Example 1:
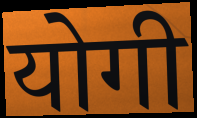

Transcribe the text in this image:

योगी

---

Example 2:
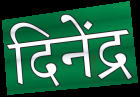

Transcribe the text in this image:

दिनेंद्र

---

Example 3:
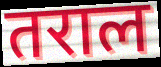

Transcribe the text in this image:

तराल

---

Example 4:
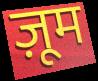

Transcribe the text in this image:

ज़ूम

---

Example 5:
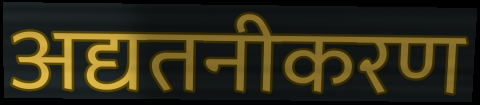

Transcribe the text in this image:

अद्यतनीकरण